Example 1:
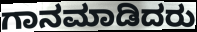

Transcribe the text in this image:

ಗಾನಮಾಡಿದರು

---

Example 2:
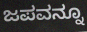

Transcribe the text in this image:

ಜಪವನ್ನೂ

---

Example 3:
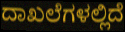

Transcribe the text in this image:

ದಾಖಲೆಗಳಲ್ಲಿದೆ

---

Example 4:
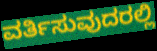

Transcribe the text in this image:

ವರ್ತಿಸುವುದರಲ್ಲಿ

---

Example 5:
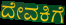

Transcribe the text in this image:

ದೇವಕಿಗೆ